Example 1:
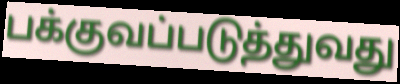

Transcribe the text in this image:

பக்குவப்படுத்துவது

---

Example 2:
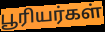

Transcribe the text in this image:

பூரியர்கள்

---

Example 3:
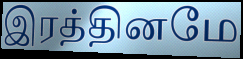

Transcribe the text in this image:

இரத்தினமே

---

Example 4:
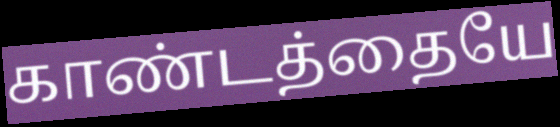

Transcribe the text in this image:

காண்டத்தையே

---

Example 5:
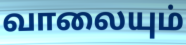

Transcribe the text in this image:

வாலையும்